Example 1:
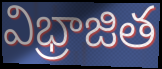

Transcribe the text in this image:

విభ్రాజిత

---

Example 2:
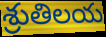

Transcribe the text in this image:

శ్రుతిలయ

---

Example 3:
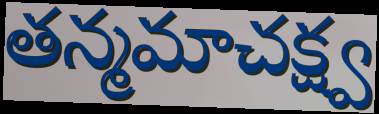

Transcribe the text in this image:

తన్మమాచక్ష్వ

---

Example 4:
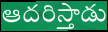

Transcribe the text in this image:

ఆదరిస్తాడు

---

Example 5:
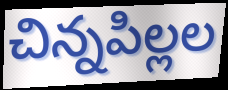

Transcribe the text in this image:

చిన్నపిల్లల